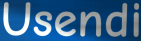
Usendi